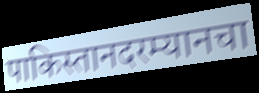
पाकिस्तानदरम्यानचा